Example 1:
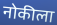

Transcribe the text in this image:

नोकीला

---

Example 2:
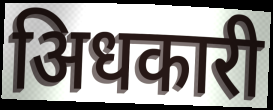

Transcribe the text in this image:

अिधकारी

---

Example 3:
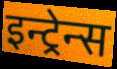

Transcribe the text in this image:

इन्ट्रेन्स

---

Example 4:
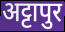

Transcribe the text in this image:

अट्टापुर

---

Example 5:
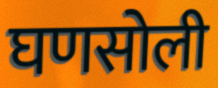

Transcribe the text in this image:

घणसोली